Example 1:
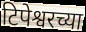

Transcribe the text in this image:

टिपेश्वरच्या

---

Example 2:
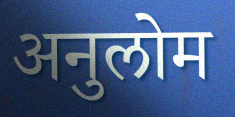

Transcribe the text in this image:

अनुलोम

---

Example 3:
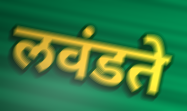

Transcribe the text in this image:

लवंडते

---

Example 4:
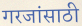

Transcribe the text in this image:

गरजांसाठी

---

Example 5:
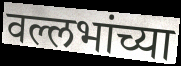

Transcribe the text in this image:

वल्लभांच्या